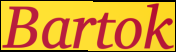
Bartok